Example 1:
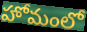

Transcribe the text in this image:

హోమంలో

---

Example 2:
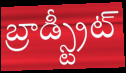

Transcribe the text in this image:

బ్రాడ్స్ట్రీట్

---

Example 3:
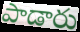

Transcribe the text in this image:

పాడారు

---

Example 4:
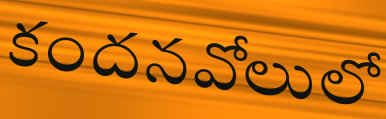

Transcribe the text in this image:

కందనవోలులో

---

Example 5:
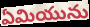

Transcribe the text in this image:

ఏమియును